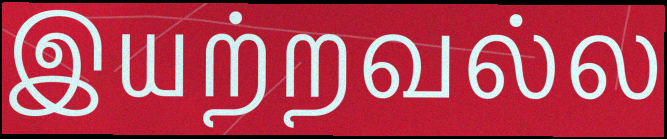
இயற்றவல்ல